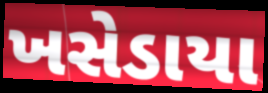
ખસેડાયા